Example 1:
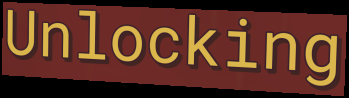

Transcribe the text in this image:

Unlocking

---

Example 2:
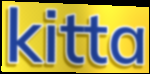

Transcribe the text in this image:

kitta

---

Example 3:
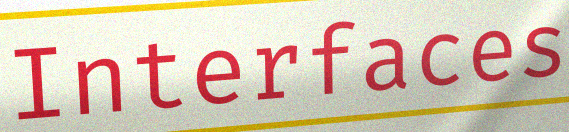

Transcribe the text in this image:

Interfaces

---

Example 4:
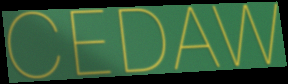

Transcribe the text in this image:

CEDAW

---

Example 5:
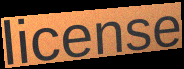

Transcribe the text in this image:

license